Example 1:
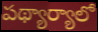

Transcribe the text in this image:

పథ్యార్యాలో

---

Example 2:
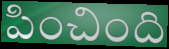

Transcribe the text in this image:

పించింది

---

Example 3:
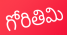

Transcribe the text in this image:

గోరితిమి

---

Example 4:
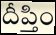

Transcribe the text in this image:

దీప్తిం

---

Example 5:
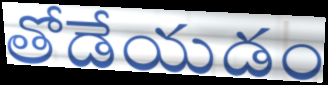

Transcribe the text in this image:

తోడేయడం